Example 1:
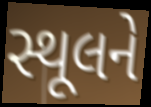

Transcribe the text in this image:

સ્થૂલને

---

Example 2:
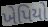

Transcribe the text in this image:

ખેપિયો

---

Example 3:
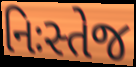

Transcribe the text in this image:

નિઃસ્તેજ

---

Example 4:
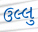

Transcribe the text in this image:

ઉલ્લુ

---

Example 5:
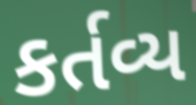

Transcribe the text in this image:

કર્તવ્ય